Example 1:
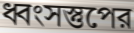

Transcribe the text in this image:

ধ্বংসস্তুপের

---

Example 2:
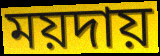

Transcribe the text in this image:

ময়দায়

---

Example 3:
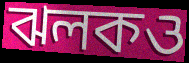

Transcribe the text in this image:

ঝলকও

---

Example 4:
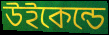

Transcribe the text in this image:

উইকেন্ডে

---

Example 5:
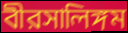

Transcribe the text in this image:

বীরসালিঙ্গম